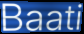
Baati